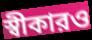
স্বীকারও